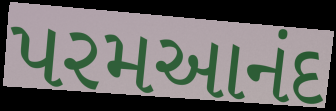
પરમઆનંદ